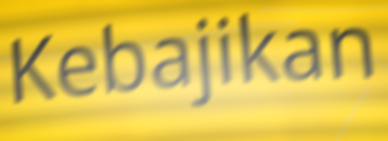
Kebajikan